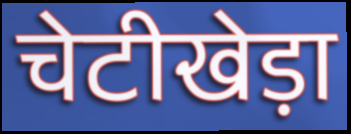
चेटीखेड़ा